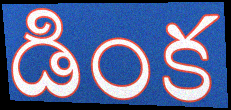
డింక